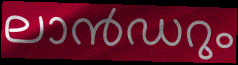
ലാൻഡറും